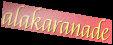
alakaranade